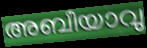
അബീയാവു